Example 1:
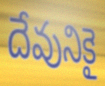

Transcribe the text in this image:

దేవునికై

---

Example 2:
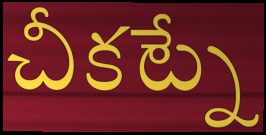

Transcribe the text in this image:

చీకట్నే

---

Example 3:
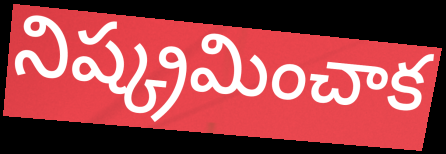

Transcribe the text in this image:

నిష్క్రమించాక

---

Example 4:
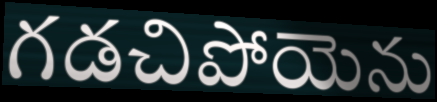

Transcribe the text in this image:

గడచిపోయెను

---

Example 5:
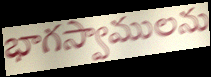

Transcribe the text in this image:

భాగస్వాములను